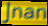
Jnan